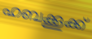
ഹബക്കൂക്ക്